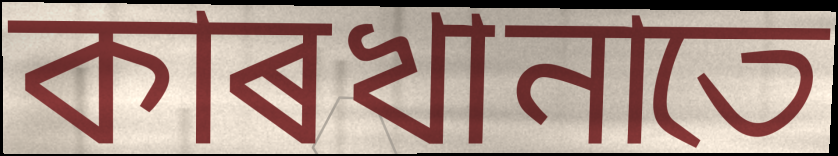
কাৰখানাতে